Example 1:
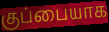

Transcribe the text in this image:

குப்பையாக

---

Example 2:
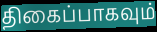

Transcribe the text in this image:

திகைப்பாகவும்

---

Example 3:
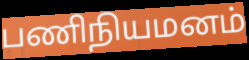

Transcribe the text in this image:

பணிநியமனம்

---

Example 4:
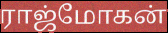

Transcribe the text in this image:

ராஜ்மோகன்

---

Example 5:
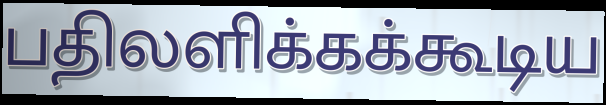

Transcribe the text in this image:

பதிலளிக்கக்கூடிய